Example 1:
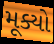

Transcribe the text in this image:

મૂક્યો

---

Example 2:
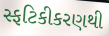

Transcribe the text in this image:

સ્ફટિકીકરણથી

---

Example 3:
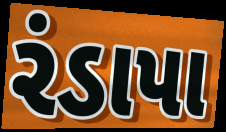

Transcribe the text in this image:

રંડાપા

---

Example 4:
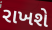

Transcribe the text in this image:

રાખશે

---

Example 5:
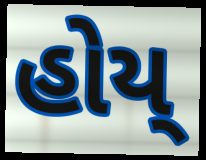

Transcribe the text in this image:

હોય્